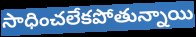
సాధించలేకపోతున్నాయి